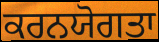
ਕਰਨਯੋਗਤਾ